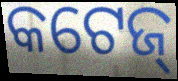
କଟେଜ୍